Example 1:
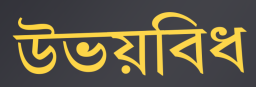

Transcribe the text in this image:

উভয়বিধ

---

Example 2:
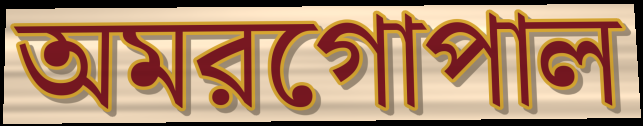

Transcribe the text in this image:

অমরগোপাল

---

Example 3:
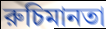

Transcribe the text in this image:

রুচিমানতা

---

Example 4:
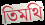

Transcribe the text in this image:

তিমথি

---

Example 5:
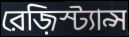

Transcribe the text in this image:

রেজ়িস্ট্যান্স